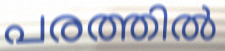
പരത്തിൽ